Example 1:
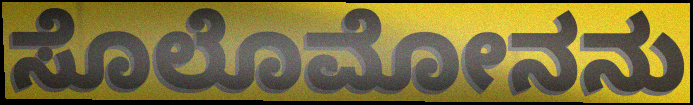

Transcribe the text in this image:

ಸೊಲೊಮೋನನು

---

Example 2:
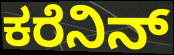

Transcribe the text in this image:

ಕರೆನಿನ್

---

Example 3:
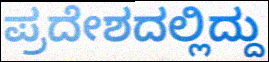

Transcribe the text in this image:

ಪ್ರದೇಶದಲ್ಲಿದ್ದು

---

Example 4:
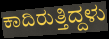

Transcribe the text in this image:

ಕಾದಿರುತ್ತಿದ್ದಳು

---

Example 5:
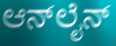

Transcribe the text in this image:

ಆನ್‌ಲೈನ್